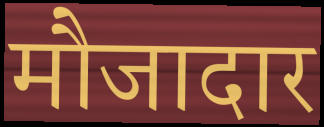
मौजादार